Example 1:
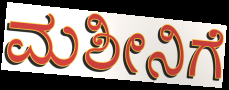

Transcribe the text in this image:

ಮಶೀನಿಗೆ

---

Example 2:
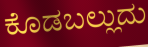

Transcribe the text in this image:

ಕೊಡಬಲ್ಲುದು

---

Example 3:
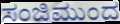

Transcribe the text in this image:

ಸಂಜಿಮುಂದ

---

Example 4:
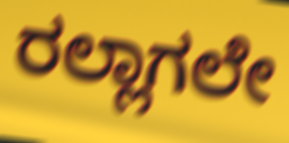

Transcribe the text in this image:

ರಲ್ಲಾಗಲೇ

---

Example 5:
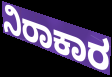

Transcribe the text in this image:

ನಿರಾಕಾರ